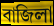
বাজিলা